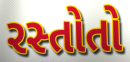
રસ્તોતો